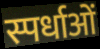
स्‍पर्धाओं